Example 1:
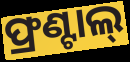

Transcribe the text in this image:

ଫ୍ରଣ୍ଟାଲ୍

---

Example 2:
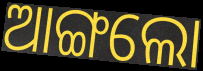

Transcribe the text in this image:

ଆଙ୍ଗଲୋ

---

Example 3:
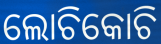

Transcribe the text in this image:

ଲୋଚିକୋଚି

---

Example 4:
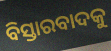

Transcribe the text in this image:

ବିସ୍ତାରବାଦକୁ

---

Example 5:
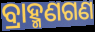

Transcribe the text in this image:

ବ୍ରାହ୍ମଣଗଣ